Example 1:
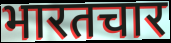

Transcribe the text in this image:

भारतचार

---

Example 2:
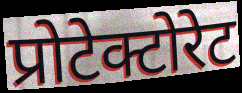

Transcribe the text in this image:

प्रोटेक्टोरेट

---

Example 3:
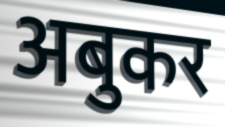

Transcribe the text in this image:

अबुकर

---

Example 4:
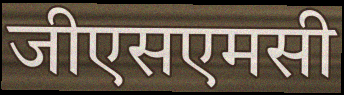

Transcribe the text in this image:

जीएसएमसी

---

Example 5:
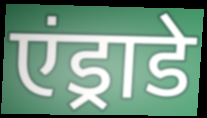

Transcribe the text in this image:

एंड्राडे